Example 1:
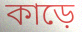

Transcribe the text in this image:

কাড়ে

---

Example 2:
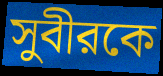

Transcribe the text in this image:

সুবীরকে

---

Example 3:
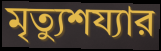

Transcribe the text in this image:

মৃত্যুশয্যার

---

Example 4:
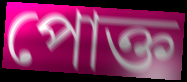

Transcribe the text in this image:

পোক্ত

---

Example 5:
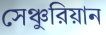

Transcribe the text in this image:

সেঞ্চুরিয়ান